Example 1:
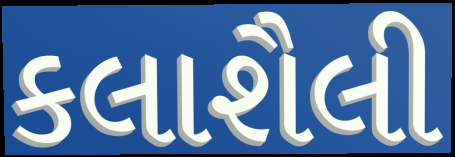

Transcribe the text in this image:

કલાશૈલી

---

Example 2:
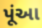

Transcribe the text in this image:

પૂંઆ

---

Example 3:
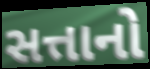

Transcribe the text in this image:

સત્તાનો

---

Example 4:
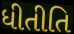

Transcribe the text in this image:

ધીતીતિ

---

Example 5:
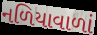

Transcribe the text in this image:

નળિયાવાળાં